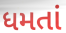
ધમતાં